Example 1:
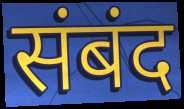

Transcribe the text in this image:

संबंद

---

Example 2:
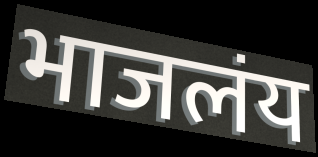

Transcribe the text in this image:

भाजलंय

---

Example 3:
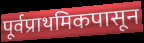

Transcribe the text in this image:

पूर्वप्राथमिकपासून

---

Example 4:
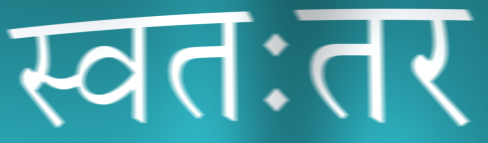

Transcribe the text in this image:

स्वतःतर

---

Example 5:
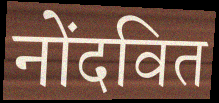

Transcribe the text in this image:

नोंदवित